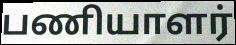
பணியாளர்